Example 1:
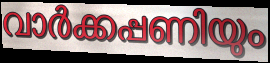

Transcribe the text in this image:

വാർക്കപ്പണിയും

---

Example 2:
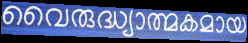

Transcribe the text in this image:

വൈരുദ്ധ്യാത്മകമായ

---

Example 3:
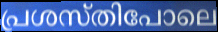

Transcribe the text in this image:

പ്രശസ്തിപോലെ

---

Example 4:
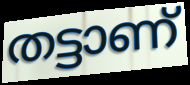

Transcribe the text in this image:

തട്ടാണ്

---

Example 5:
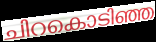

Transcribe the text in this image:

ചിറകൊടിഞ്ഞ